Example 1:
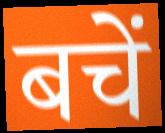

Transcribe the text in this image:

बचें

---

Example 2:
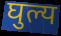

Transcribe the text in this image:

घुल्य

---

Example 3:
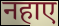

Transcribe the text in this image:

नहाए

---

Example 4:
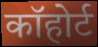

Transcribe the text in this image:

कॉहोर्ट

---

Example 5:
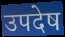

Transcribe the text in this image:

उपदेष